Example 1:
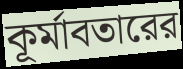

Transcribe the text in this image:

কূর্মাবতারের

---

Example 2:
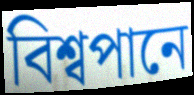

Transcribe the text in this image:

বিশ্বপানে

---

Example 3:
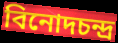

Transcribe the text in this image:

বিনোদচন্দ্র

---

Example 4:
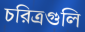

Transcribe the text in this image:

চরিত্রগুলি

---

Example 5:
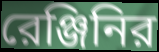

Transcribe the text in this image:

রেঞ্জিনির